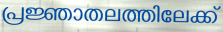
പ്രജ്ഞാതലത്തിലേക്ക്